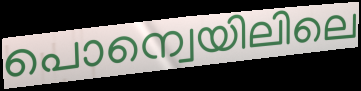
പൊന്വെയിലിലെ